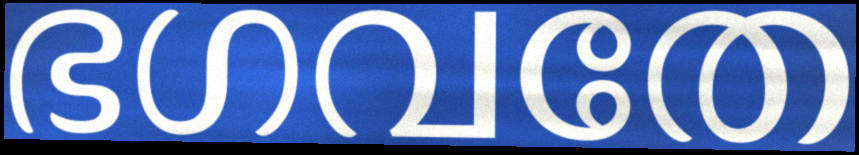
ഭഗവതേ